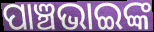
ପାଞ୍ଚଭାଇଙ୍କ